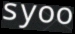
syoo